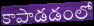
కాపాడడంలో